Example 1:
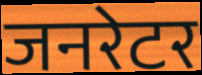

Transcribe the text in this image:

जनरेटर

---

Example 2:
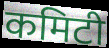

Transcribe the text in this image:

कमिटी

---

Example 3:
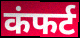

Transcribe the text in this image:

कंफर्ट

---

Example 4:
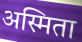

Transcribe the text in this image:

अस्मिता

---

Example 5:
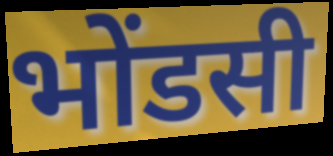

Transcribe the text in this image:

भोंडसी